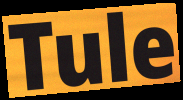
Tule